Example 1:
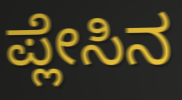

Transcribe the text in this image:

ಪ್ಲೇಸಿನ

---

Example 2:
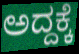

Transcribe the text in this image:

ಅದ್ದಕ್ಕೆ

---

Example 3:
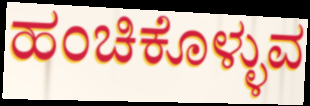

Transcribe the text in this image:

ಹಂಚಿಕೊಳ್ಳುವ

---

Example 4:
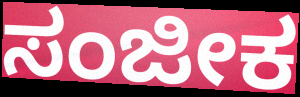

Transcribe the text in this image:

ಸಂಜೀಕ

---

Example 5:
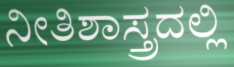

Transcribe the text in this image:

ನೀತಿಶಾಸ್ತ್ರದಲ್ಲಿ